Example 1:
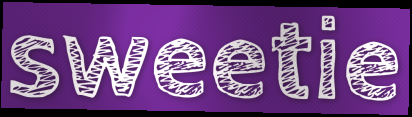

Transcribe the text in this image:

sweetie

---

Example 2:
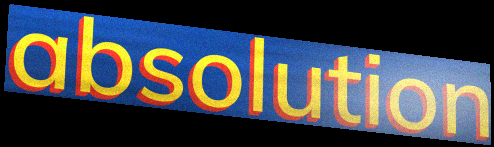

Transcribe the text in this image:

absolution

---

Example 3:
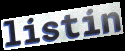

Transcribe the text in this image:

listin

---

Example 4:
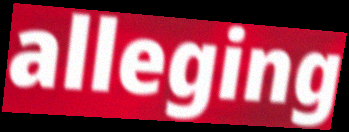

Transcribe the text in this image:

alleging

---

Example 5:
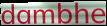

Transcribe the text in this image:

dambhe